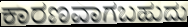
ಕಾರಣವಾಗಬಹುದು